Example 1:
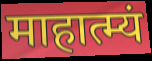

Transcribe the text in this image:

माहात्म्यं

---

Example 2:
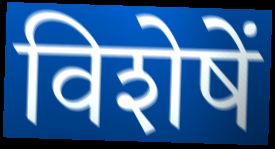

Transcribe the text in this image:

विशेषें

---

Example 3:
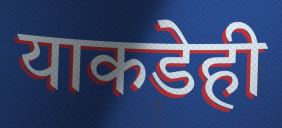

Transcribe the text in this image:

याकडेही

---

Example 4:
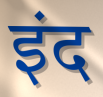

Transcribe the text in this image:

इंद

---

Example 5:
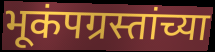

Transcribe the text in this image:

भूकंपग्रस्तांच्या